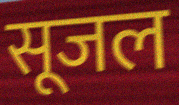
सूजल